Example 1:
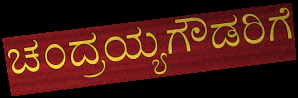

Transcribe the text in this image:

ಚಂದ್ರಯ್ಯಗೌಡರಿಗೆ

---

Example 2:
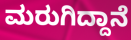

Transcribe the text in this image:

ಮರುಗಿದ್ದಾನೆ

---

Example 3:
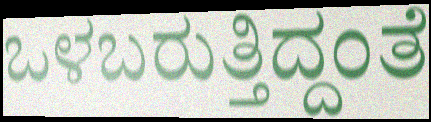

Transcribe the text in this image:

ಒಳಬರುತ್ತಿದ್ದಂತೆ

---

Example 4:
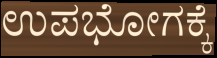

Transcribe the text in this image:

ಉಪಭೋಗಕ್ಕೆ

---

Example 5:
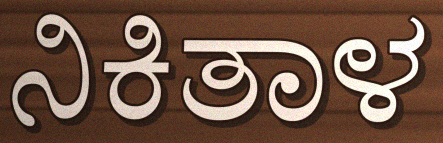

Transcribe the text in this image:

ನಿಕಿತಾಳ